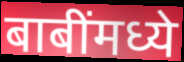
बाबींमध्ये